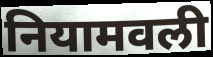
नियामवली